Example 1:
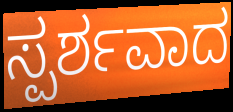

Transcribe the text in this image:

ಸ್ಪರ್ಶವಾದ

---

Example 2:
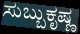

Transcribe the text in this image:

ಸುಬ್ಬುಕೃಷ್ಣ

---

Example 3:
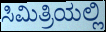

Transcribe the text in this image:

ಸಿಮಿತ್ರಿಯಲ್ಲಿ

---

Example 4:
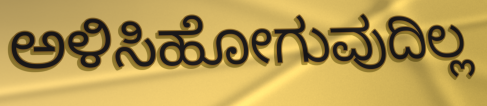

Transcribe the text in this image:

ಅಳಿಸಿಹೋಗುವುದಿಲ್ಲ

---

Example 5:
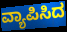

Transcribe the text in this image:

ವ್ಯಾಪಿಸಿದ